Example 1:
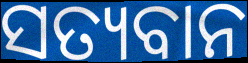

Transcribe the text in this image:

ସତ୍ୟବାନ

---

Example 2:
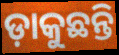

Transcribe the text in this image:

ଡ଼ାକୁଛନ୍ତି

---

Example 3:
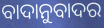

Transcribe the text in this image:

ବାଦାନୁବାଦର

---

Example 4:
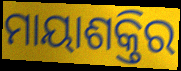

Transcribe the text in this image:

ମାୟାଶକ୍ତିର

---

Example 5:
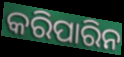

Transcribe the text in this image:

କରିପାରିନ